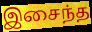
இசைந்த